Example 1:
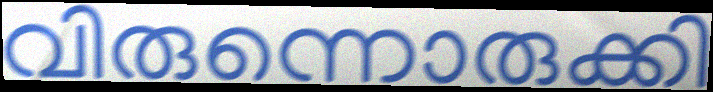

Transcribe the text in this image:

വിരുന്നൊരുക്കി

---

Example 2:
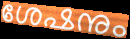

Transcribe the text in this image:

ശേഷനും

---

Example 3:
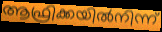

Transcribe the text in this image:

ആഫ്രിക്കയിൽനിന്ന്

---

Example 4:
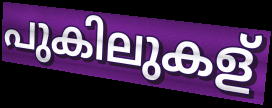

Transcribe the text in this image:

പുകിലുകള്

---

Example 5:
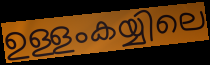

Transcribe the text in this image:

ഉള്ളംകയ്യിലെ